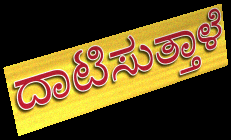
ದಾಟಿಸುತ್ತಾಳೆ